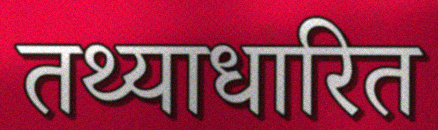
तथ्याधारित